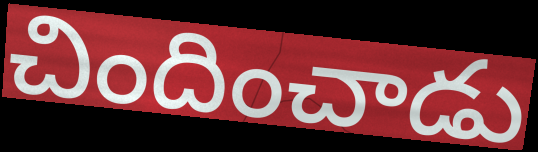
చిందించాడు